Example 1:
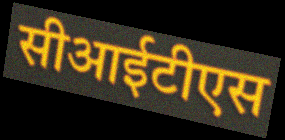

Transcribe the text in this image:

सीआईटीएस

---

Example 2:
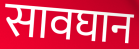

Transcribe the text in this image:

सावघान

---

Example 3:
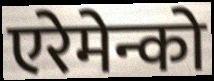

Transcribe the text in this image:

एरेमेन्को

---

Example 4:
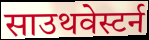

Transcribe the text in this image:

साउथवेस्टर्न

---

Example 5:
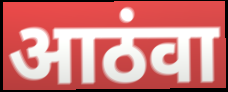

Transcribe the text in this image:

आठंवा